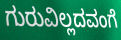
ಗುರುವಿಲ್ಲದವಂಗೆ